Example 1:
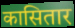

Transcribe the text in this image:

कासितार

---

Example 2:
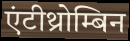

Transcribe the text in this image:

एंटीथ्रोम्बिन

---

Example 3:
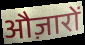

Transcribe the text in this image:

औज़ारों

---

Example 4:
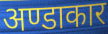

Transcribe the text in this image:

अण्डाकार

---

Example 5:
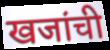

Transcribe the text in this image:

खजांची